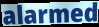
alarmed